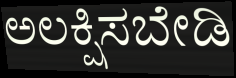
ಅಲಕ್ಷಿಸಬೇಡಿ